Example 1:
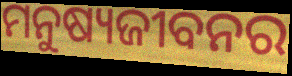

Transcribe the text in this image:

ମନୁଷ୍ୟଜୀବନର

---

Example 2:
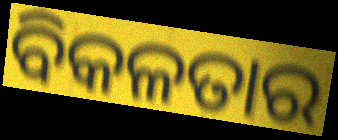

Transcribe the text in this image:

ବିକଳତାର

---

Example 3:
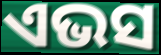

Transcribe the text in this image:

ଏଭସ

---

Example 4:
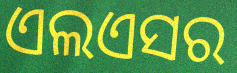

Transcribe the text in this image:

ଏଲଏସର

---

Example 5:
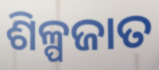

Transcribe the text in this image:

ଶିଳ୍ପଜାତ